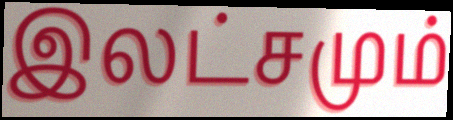
இலட்சமும்